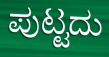
ಪುಟ್ಟದು